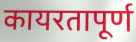
कायरतापूर्ण